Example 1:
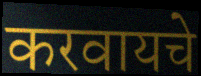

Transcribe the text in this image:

करवायचे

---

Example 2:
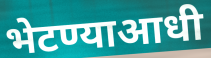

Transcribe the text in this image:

भेटण्याआधी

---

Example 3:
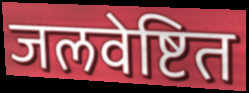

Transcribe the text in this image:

जलवेष्टित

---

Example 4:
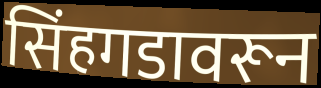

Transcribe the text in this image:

सिंहगडावरून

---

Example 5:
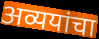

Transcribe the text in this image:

अव्ययांचा